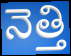
నెత్తి